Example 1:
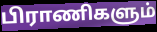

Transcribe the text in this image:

பிராணிகளும்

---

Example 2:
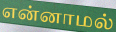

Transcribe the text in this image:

என்னாமல்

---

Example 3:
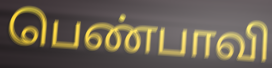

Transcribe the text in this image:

பெண்பாவி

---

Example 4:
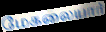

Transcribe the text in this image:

மேகலையார்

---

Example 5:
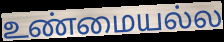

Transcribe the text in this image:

உண்மையல்ல